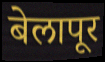
बेलापूर